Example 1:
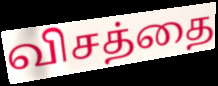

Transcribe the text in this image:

விசத்தை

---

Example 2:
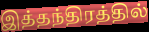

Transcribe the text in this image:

இத்தந்திரத்தில்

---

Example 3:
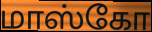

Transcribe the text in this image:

மாஸ்கோ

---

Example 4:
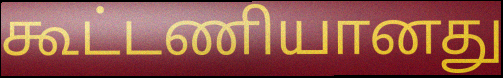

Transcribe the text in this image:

கூட்டணியானது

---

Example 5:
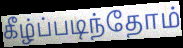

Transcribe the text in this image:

கீழ்ப்படிந்தோம்